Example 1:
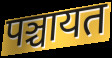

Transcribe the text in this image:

पञ्चायत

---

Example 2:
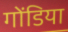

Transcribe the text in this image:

गोंडिया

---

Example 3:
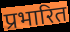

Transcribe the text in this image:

प्रभारित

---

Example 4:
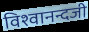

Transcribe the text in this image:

विश्वानन्दजी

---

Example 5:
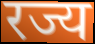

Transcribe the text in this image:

रज्य